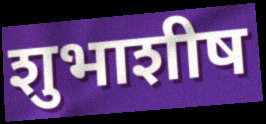
शुभाशीष